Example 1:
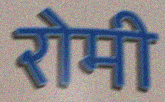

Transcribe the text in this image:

रोमी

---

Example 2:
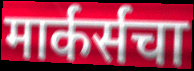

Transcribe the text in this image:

मार्कर्सचा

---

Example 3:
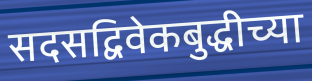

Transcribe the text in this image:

सदसद्विवेकबुद्धीच्या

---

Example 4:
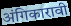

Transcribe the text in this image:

अंगिकारावी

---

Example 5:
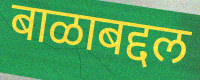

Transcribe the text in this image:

बाळाबद्दल